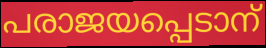
പരാജയപ്പെടാന്